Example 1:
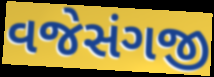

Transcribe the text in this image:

વજેસંગજી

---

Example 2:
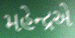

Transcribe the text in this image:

મહેન્દ્રએ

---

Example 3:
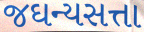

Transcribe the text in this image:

જઘન્યસત્તા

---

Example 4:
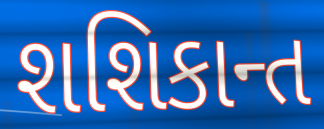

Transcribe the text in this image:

શશિકાન્ત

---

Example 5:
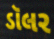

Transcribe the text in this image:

ડૉલર